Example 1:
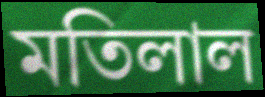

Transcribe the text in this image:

মতিলাল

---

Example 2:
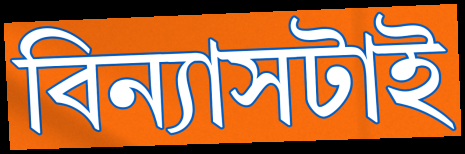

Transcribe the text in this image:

বিন্যাসটাই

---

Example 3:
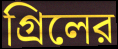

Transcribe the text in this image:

গ্রিলের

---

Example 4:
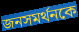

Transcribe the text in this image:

জনসমর্থনকে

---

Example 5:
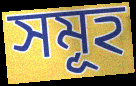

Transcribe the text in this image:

সমূহ